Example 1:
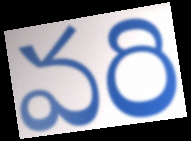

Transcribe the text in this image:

వరి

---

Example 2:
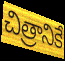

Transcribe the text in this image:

చిత్రానికే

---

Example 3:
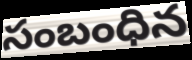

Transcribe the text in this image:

సంబంధిన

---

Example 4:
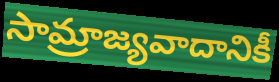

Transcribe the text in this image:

సామ్రాజ్యవాదానికీ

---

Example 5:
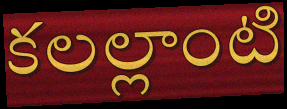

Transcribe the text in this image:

కలల్లాంటి